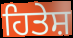
ਹਿਤੇਸ਼